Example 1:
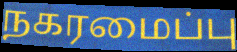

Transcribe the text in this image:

நகரமைப்பு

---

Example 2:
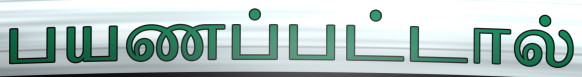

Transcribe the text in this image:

பயணப்பட்டால்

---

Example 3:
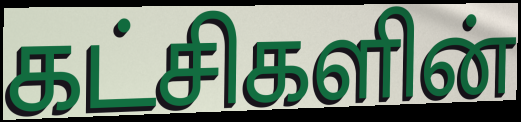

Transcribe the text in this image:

கட்சிகளின்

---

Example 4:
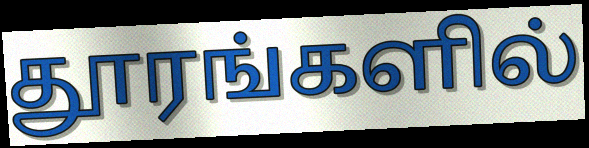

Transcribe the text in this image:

தூரங்களில்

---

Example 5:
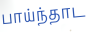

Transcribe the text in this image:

பாய்ந்தாட